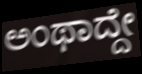
ಅಂಥಾದ್ದೇ